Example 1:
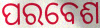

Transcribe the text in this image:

ପରବେଶ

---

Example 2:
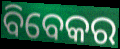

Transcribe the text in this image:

ବିବେକର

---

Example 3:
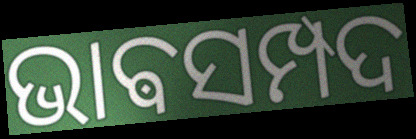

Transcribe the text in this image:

ଭାଵସମ୍ପଦ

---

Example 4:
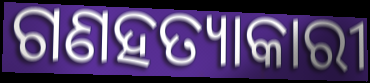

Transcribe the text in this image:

ଗଣହତ୍ୟାକାରୀ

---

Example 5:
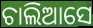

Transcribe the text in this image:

ଚାଲିଆସେ